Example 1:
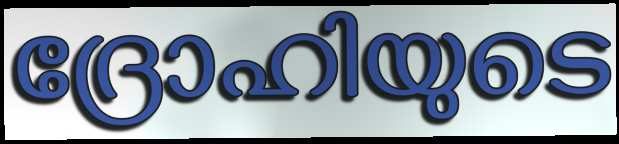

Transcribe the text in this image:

ദ്രോഹിയുടെ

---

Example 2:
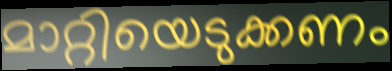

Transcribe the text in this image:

മാറ്റിയെടുക്കണം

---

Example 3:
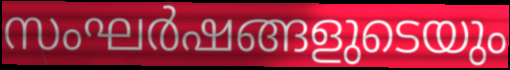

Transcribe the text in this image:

സംഘർഷങ്ങളുടെയും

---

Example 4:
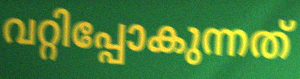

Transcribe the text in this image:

വറ്റിപ്പോകുന്നത്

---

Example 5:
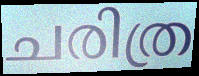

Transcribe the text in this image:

ചരിത്ര